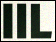
IIL